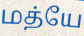
மத்யே